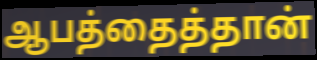
ஆபத்தைத்தான்